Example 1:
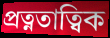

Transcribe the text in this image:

প্ৰত্নতাত্বিক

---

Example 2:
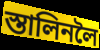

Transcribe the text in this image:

স্তালিনলৈ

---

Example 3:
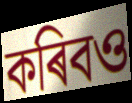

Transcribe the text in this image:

কৰিবও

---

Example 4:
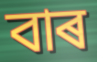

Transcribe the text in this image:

বাৰ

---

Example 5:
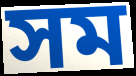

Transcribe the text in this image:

সম